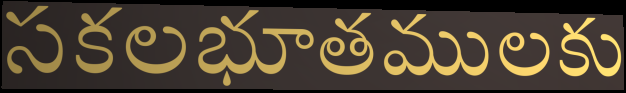
సకలభూతములకు